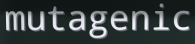
mutagenic